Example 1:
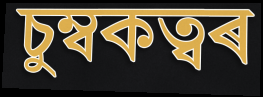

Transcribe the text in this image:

চুম্বকত্বৰ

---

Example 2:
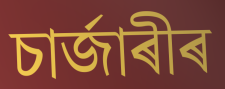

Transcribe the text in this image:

চাৰ্জাৰীৰ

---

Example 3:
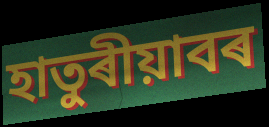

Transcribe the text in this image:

হাতুৰীয়াবৰ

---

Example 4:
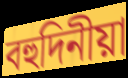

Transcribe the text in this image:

বহুদিনীয়া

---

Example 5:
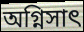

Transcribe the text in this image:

অগ্নিসাৎ